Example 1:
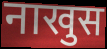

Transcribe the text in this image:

नाखुस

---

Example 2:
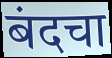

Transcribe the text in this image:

बंदचा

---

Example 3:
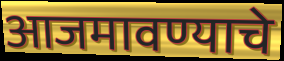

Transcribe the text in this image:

आजमावण्याचे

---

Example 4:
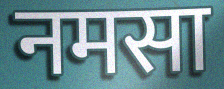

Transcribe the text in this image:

नमसा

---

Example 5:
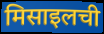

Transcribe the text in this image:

मिसाइलची